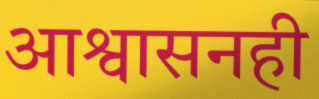
आश्वासनही